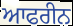
ਆਫਰੀਨ